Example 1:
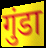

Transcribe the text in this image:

गुंडा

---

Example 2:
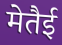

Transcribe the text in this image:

मेतैई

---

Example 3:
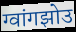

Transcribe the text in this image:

ग्वांगझोउ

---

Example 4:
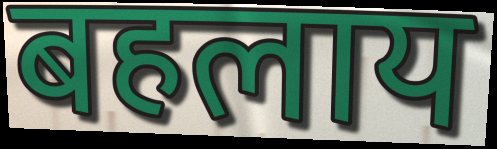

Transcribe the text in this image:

बहलाय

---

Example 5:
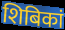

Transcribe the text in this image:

शिबिकां